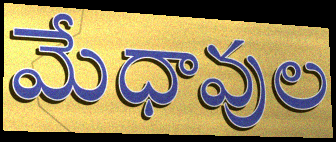
మేధావుల